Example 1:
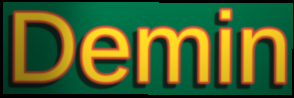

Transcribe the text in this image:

Demin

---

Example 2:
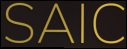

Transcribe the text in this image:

SAIC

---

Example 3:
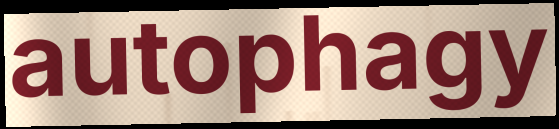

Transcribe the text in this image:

autophagy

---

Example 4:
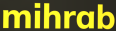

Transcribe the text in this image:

mihrab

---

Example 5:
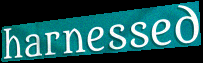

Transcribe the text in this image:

harnessed